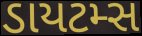
ડાયટમ્સ